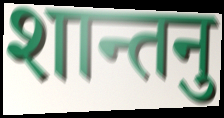
शान्तनु